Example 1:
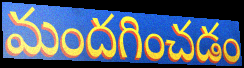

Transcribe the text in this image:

మందగించడం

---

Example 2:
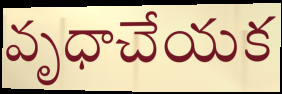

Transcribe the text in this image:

వృధాచేయక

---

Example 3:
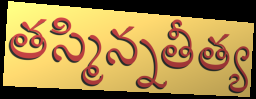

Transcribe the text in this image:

తస్మిన్నతీత్య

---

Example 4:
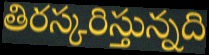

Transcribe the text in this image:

తిరస్కరిస్తున్నది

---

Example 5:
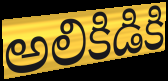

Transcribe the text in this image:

అలికిడికి